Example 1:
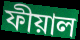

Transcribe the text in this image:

ফীয়াল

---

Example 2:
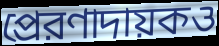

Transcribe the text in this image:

প্রেরণাদায়কও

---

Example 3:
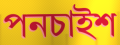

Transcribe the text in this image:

পনচাইশ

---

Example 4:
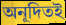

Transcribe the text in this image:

অনূদিতই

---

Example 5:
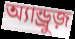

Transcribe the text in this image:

অ্যান্ড্রুজ়